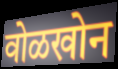
वोळखोन